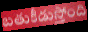
బతుకీడుస్తోంది